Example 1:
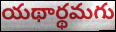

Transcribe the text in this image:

యథార్థమగు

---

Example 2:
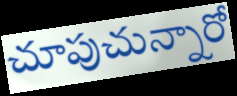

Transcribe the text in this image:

చూపుచున్నారో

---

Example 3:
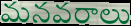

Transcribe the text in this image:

మనవరాలు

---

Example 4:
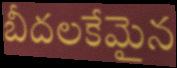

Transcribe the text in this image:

బీదలకేమైన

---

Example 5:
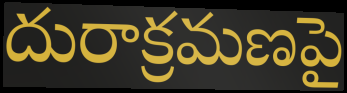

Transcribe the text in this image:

దురాక్రమణపై